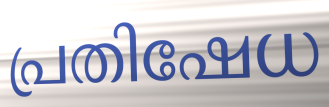
പ്രതിഷേധ